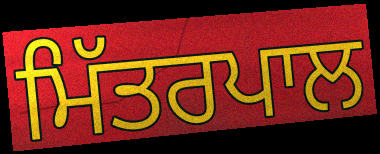
ਮਿੱਤਰਪਾਲ